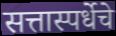
सत्तास्पर्धेचे